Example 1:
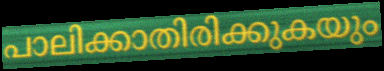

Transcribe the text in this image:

പാലിക്കാതിരിക്കുകയും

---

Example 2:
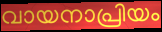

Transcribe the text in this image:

വായനാപ്രിയം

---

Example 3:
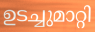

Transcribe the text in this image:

ഉടച്ചുമാറ്റി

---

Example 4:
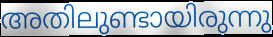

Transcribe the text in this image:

അതിലുണ്ടായിരുന്നു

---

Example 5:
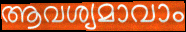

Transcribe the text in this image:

ആവശ്യമാവാം